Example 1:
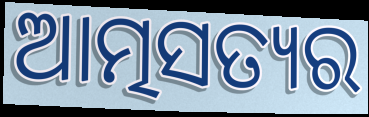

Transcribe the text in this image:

ଆତ୍ମସତ୍ୟର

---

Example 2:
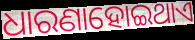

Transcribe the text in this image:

ଧାରଣାହୋଇଥାଏ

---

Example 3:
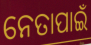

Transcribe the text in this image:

ନେତାପାଇଁ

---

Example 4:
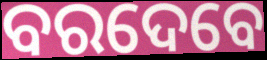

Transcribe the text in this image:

ବରଦେବେ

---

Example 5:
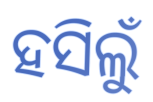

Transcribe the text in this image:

ହସିଲୁଁ